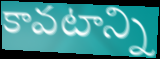
కావటాన్ని